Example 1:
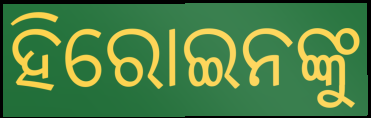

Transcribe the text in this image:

ହିରୋଇନଙ୍କୁ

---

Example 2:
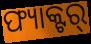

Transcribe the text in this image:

ଫ୍ୟାକ୍ଟର୍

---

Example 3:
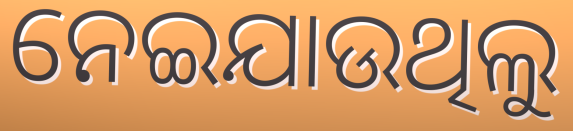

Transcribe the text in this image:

ନେଇଯାଉଥିଲୁ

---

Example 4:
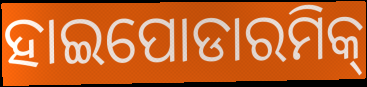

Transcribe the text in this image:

ହାଇପୋଡାରମିକ୍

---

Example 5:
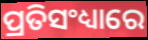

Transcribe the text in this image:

ପ୍ରତିସଂଧ୍ୟାରେ